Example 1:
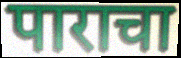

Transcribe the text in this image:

पाराचा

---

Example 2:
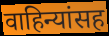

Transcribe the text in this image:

वाहिन्यांसह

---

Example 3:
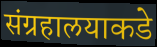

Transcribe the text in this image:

संग्रहालयाकडे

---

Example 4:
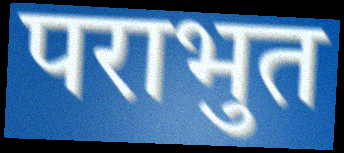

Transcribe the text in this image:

पराभुत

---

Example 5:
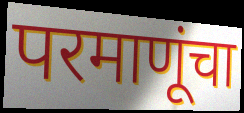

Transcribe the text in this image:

परमाणूंचा